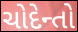
ચોદેન્તો